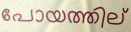
പോയത്തില്